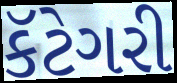
કૅટેગરી